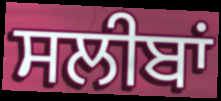
ਸਲੀਬਾਂ